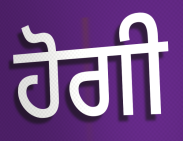
ਹੋਗੀ